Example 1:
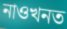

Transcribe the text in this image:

নাওখনত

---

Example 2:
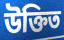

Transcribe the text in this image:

উক্তিত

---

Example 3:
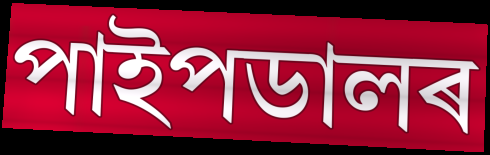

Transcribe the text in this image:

পাইপডালৰ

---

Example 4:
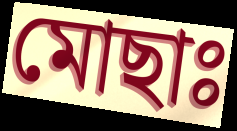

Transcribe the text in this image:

মোছাঃ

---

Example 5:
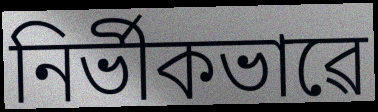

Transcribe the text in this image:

নিৰ্ভীকভাৱে